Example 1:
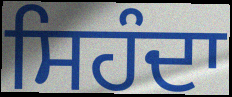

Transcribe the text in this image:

ਸਿਹੰਦਾ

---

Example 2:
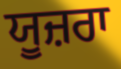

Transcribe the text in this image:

ਯੂਜ਼ਰਾ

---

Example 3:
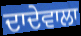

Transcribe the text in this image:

ਦਾਦੇਵਾਲਾ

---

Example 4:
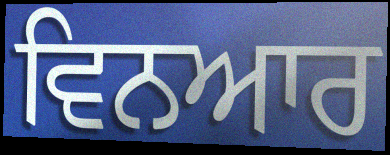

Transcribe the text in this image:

ਵਿਨਆਰ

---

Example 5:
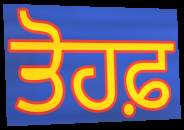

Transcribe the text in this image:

ਤੋਹਫ਼